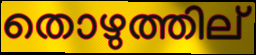
തൊഴുത്തില്